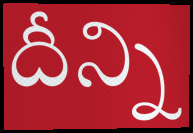
దీన్ని